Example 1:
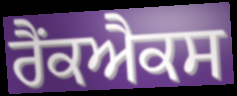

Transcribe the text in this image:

ਰੈਂਕਐਕਸ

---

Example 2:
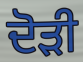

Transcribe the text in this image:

ਦੋੜੀ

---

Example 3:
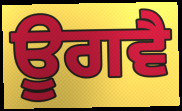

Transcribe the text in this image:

ਊਗਵੈ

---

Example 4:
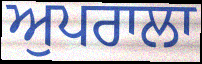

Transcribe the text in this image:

ਅੁਪਰਾਲਾ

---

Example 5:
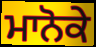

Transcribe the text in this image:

ਮਾਨੋਕੇ